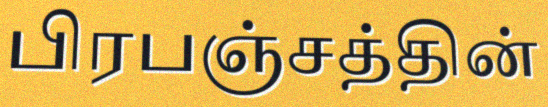
பிரபஞ்சத்தின்